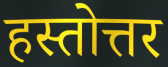
हस्तोत्तर